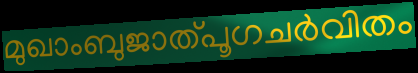
മുഖാംബുജാത്പൂഗചർവിതം